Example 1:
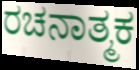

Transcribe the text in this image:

ರಚನಾತ್ಮಕ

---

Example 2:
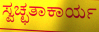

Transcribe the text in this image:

ಸ್ವಚ್ಛತಾಕಾರ್ಯ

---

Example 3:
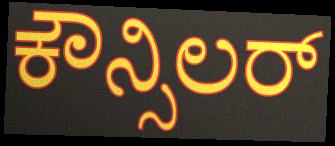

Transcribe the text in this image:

ಕೌನ್ಸಿಲರ್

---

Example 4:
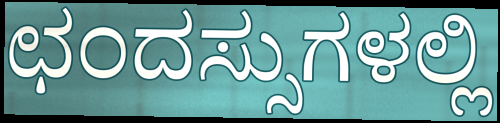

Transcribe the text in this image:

ಛಂದಸ್ಸುಗಳಲ್ಲಿ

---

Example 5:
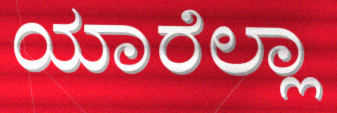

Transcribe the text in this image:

ಯಾರೆಲ್ಲಾ